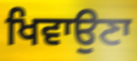
ਖਿਵਾਉਣਾ